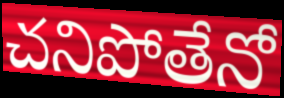
చనిపోతేనో